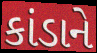
કાંડાને